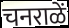
चनराळें